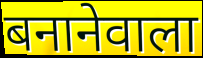
बनानेवाला